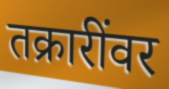
तक्रारींवर